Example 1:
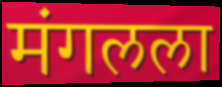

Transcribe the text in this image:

मंगलला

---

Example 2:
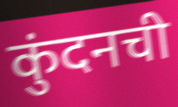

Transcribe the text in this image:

कुंदनची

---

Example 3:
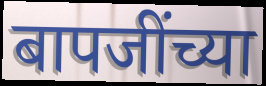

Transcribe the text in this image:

बापजींच्या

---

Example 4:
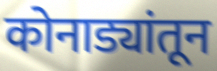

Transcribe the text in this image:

कोनाड्यांतून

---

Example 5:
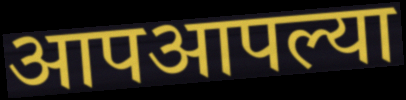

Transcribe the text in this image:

आपआपल्या